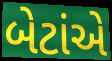
બેટાંએ